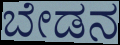
ಬೇಡನ